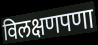
विलक्षणपणा